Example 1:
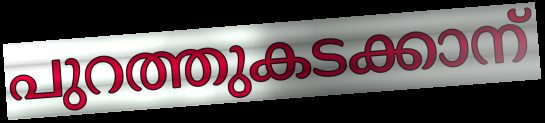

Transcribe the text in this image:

പുറത്തുകടക്കാന്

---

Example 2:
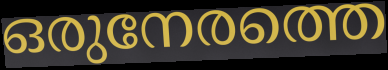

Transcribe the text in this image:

ഒരുനേരത്തെ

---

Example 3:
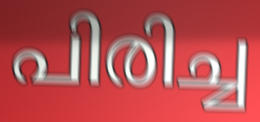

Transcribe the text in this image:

പിരിച്ച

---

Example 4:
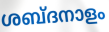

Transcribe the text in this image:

ശബ്ദനാളം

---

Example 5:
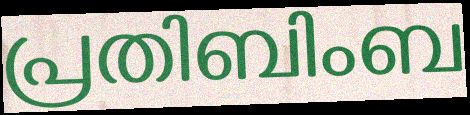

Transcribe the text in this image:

പ്രതിബിംബ